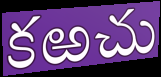
కఱచు